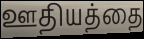
ஊதியத்தை